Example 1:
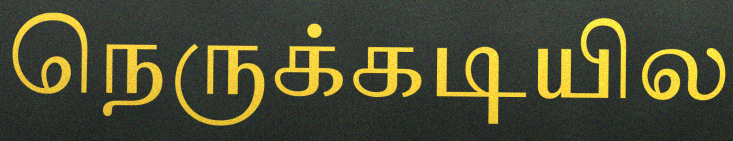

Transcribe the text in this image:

நெருக்கடியில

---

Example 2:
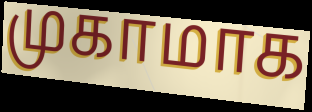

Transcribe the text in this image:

முகாமாக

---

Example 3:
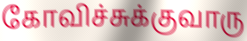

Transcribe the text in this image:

கோவிச்சுக்குவாரு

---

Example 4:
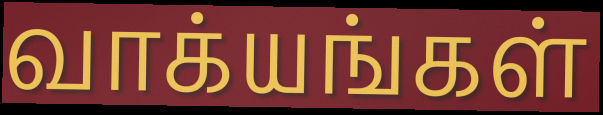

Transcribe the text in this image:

வாக்யங்கள்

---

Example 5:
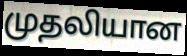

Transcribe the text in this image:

முதலியான